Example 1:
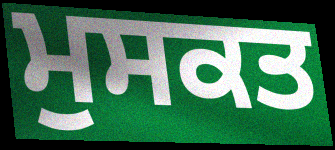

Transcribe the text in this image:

ਮੁਸਕਤ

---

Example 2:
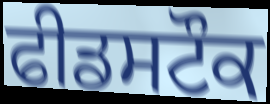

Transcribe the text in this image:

ਫੀਡਸਟੌਕ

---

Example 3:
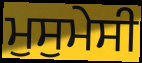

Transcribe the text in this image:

ਮੁਸੁਮੇਸੀ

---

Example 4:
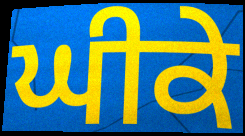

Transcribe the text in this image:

ਘੀਕੇ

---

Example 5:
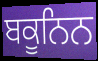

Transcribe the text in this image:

ਬਕੂਨਿਨ